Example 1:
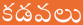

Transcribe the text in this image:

కడవలు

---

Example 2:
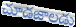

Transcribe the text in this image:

చూడజాలడు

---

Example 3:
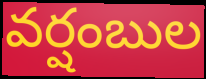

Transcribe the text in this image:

వర్షంబుల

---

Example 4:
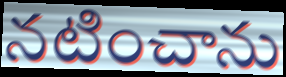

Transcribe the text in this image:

నటించాను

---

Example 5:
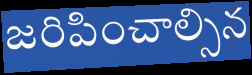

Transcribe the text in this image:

జరిపించాల్సిన